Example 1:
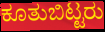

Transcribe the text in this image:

ಕೂತುಬಿಟ್ಟರು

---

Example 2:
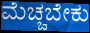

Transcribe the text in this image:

ಮೆಚ್ಚಬೇಕು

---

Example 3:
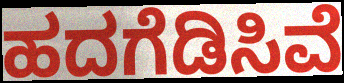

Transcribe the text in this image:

ಹದಗೆಡಿಸಿವೆ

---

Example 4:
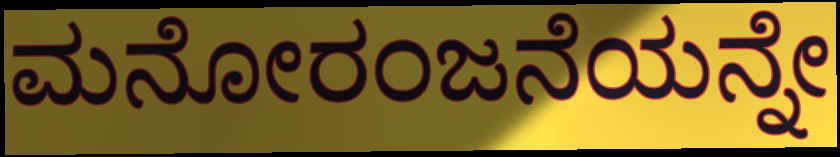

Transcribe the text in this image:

ಮನೋರಂಜನೆಯನ್ನೇ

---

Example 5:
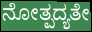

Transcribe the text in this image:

ನೋತ್ಪದ್ಯತೇ